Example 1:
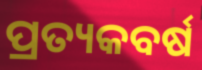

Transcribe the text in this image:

ପ୍ରତ୍ୟକବର୍ଷ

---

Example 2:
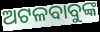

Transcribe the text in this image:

ଅଟଳବାବୁଙ୍କ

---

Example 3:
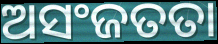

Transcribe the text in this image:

ଅସଂଜତତା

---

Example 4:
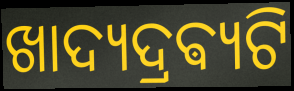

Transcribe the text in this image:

ଖାଦ୍ୟଦ୍ରଵ୍ୟଟି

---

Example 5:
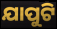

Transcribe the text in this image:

ଯାପୁଟି